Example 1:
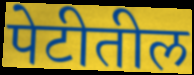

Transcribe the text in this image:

पेटीतील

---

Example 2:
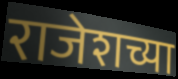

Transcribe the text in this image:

राजेशच्या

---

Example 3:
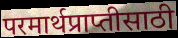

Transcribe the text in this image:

परमार्थप्राप्तीसाठी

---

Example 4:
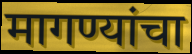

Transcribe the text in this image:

मागण्यांचा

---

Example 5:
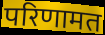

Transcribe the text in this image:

परिणामत